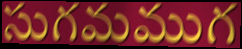
సుగమముగ